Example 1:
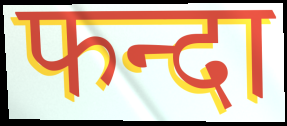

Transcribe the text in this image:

फन्दा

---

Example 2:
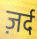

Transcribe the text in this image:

ज़र्द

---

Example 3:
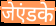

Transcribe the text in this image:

जेएंडके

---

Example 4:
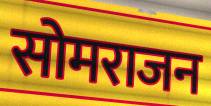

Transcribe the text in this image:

सोमराजन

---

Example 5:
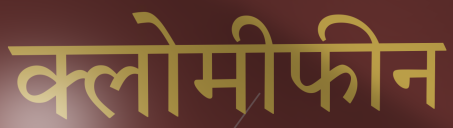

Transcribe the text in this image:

क्लोमीफीन